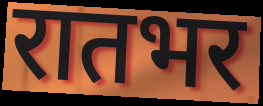
रातभर